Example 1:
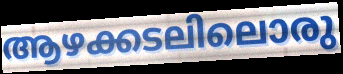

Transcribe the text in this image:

ആഴക്കടലിലൊരു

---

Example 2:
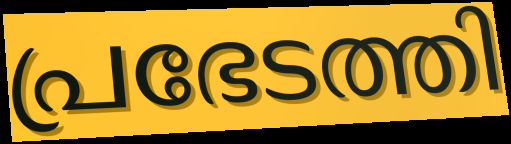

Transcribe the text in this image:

പ്രഭേടത്തി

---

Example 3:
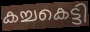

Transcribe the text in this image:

കച്ചകെട്ടി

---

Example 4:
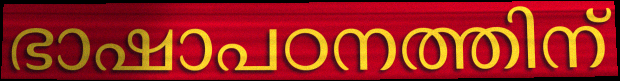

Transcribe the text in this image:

ഭാഷാപഠനത്തിന്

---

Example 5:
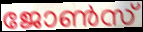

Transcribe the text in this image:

ജോൺസ്